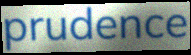
prudence